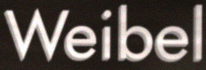
Weibel